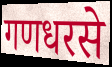
गणधरसे